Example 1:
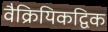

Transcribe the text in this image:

वैक्रियिकद्विक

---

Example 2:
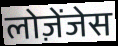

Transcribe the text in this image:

लोज़ेंजेस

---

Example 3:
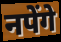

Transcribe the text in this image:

नपेंगे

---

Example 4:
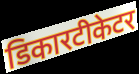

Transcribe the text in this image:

डिकारटीकेटर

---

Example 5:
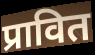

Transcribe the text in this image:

प्रावित